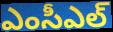
ఎంసీఎల్